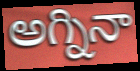
అగ్నినా